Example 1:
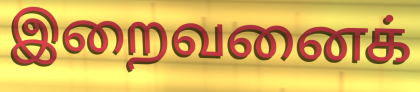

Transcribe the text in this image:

இறைவனைக்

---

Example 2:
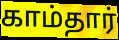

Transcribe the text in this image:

காம்தார்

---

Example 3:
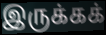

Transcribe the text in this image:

இருக்கக்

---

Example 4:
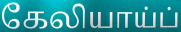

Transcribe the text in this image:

கேலியாய்ப்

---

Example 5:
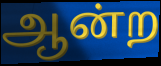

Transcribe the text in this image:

ஆன்ற